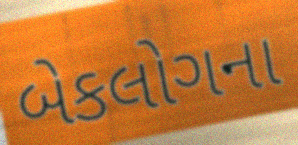
બેકલોગના